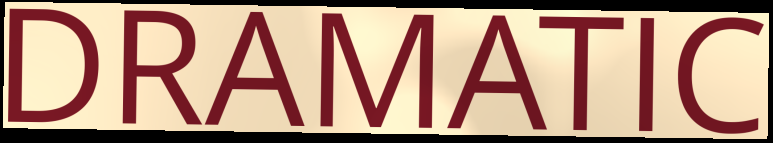
DRAMATIC